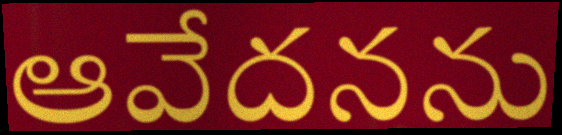
ఆవేదనను